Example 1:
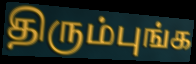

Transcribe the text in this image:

திரும்புங்க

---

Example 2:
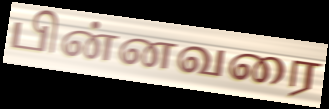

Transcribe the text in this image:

பின்னவரை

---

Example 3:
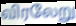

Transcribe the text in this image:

விரலேறு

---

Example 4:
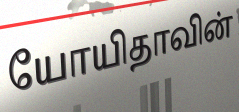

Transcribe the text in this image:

யோயிதாவின்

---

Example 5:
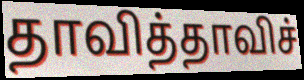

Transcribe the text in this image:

தாவித்தாவிச்